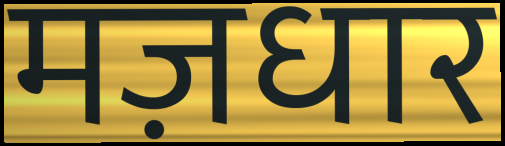
मज़धार